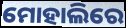
ମୋହାଲିରେ